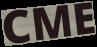
CME